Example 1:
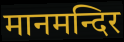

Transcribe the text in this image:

मानमन्दिर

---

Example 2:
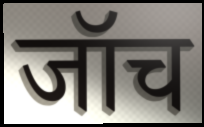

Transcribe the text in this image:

जॉच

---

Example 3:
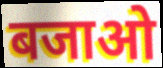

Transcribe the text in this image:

बजाओ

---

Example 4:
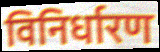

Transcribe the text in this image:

विनिर्धारण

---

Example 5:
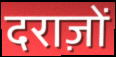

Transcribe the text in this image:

दराज़ों